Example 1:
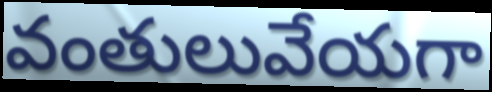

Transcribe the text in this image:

వంతులువేయగా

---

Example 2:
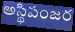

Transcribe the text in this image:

అస్థిపంజర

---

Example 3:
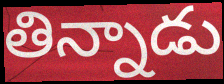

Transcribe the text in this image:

తిన్నాడు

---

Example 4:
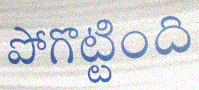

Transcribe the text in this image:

పోగొట్టింది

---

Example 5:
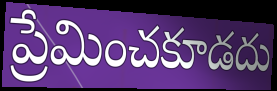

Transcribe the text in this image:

ప్రేమించకూడదు